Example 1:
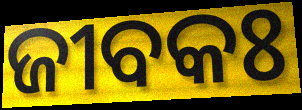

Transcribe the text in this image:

ଜୀବକଃ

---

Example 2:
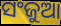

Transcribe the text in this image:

ସଂଜୁଆ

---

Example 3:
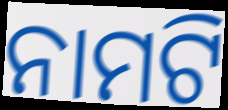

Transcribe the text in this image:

ନାମଟି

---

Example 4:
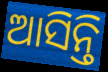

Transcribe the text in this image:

ଆସିନ୍ତି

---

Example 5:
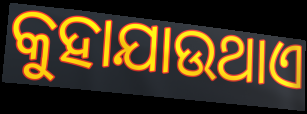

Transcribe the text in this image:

କୁହାଯାଉଥାଏ